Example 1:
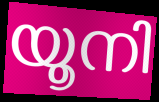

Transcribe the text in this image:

യൂനി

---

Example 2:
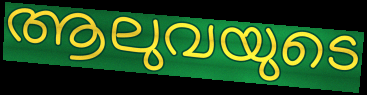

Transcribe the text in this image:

ആലുവയുടെ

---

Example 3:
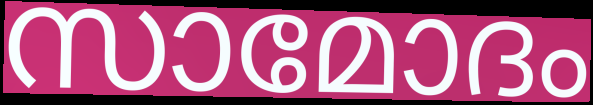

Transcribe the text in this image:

സാമോദം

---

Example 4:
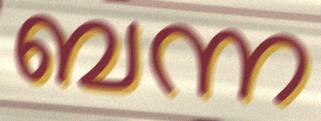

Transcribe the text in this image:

ബന്ന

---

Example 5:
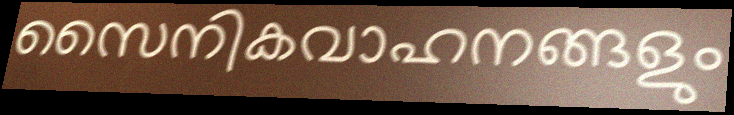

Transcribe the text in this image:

സൈനികവാഹനങ്ങളും